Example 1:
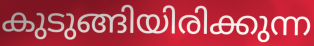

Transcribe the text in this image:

കുടുങ്ങിയിരിക്കുന്ന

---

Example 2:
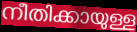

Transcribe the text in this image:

നീതിക്കായുള്ള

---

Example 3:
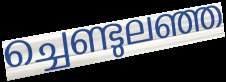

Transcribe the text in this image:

ച്ചെണ്ടുലഞ്ഞ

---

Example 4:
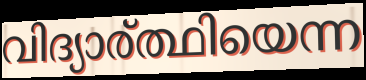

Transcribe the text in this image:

വിദ്യാര്ത്ഥിയെന്ന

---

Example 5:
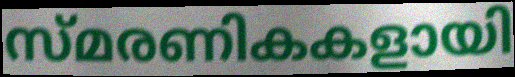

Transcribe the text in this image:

സ്മരണികകളായി